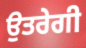
ਉਤਰੇਗੀ